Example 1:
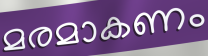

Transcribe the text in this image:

മരമാകണം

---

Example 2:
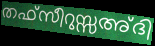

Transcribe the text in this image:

തഫ്സീറുസ്സഅ്ദി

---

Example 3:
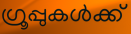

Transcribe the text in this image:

ഗ്രൂപ്പുകൾക്ക്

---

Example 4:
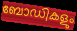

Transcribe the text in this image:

ബോഡികളും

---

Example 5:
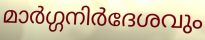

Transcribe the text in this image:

മാർഗ്ഗനിർദേശവും